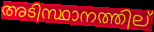
അടിസ്ഥാനത്തില്